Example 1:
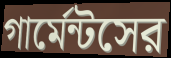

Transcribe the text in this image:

গার্মেন্টসের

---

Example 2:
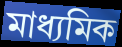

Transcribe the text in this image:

মাধ্যমিক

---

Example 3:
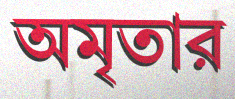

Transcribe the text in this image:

অমৃতার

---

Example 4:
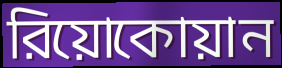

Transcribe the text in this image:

রিয়োকোয়ান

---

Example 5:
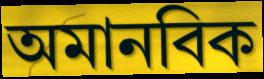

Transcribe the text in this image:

অমানবিক